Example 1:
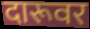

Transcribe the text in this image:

दारूवर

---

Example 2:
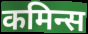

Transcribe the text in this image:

कमिन्स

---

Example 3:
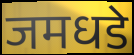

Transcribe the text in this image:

जमधडे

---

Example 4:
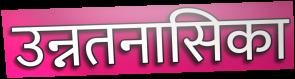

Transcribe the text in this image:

उन्नतनासिका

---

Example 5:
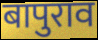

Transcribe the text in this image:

बापुराव